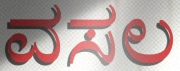
ವಸಲ